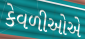
કેવળીઓએ